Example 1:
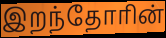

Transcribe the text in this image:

இறந்தோரின்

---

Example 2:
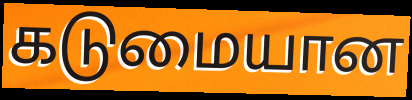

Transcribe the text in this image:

கடுமையான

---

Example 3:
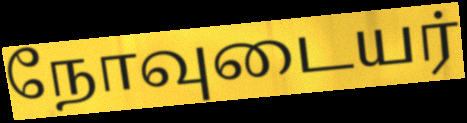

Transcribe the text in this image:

நோவுடையர்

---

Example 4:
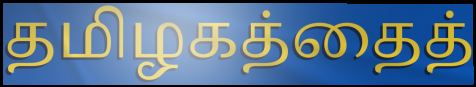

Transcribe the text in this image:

தமிழகத்தைத்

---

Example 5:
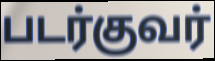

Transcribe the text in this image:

படர்குவர்